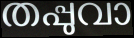
തപ്പുവാ